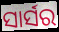
ସାର୍ସର